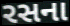
રસના